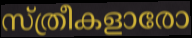
സ്ത്രീകളാരോ